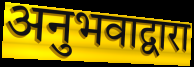
अनुभवाद्वारा